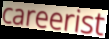
careerist